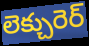
లెక్చురెర్